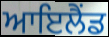
ਆਇਲੈੰਡ